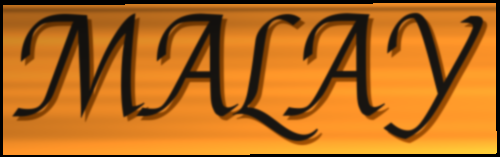
MALAY